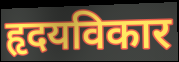
हृदयविकार